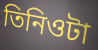
তিনিওটা